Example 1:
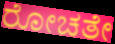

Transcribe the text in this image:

ರೋಚತೇ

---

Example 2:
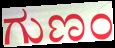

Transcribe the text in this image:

ಗುಣಂ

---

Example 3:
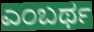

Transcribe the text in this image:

ಎಂಬರ್ಥ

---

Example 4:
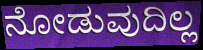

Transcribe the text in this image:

ನೋಡುವುದಿಲ್ಲ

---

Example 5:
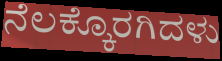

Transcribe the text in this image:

ನೆಲಕ್ಕೊರಗಿದಳು